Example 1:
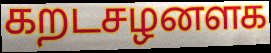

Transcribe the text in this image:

கறடசழனளக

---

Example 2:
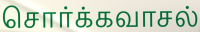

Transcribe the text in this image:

சொர்க்கவாசல்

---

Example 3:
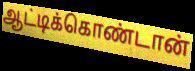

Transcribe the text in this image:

ஆட்டிக்கொண்டான்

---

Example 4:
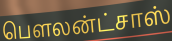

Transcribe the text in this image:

பௌலன்ட்சாஸ்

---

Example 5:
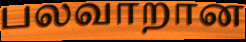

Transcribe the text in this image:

பலவாறான